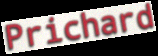
Prichard